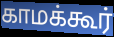
காமக்கூர்